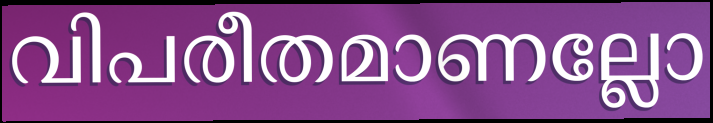
വിപരീതമാണല്ലോ